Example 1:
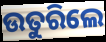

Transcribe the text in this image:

ଉତୁରିଲେ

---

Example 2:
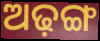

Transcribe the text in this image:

ଅଢ଼ଙ୍ଗ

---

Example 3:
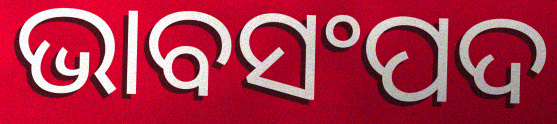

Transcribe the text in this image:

ଭାବସଂପଦ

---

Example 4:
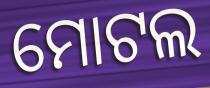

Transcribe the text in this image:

ମୋଟଲ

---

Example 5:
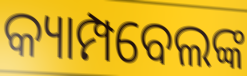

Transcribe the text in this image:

କ୍ୟାମ୍ପବେଲଙ୍କ